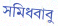
সমিধবাবু